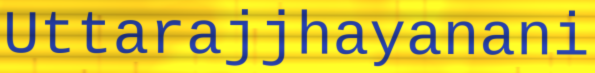
Uttarajjhayanani